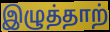
இழுத்தாற்